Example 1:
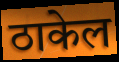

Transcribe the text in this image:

ठाकेल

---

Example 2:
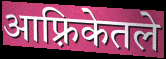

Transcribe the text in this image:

आफ़्रिकेतले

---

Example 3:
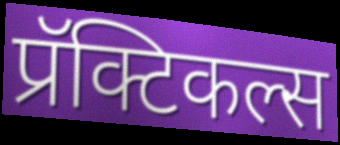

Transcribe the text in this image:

प्रॅक्टिकल्स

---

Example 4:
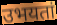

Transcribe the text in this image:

उभयतां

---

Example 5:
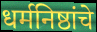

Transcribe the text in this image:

धर्मनिष्ठांचे